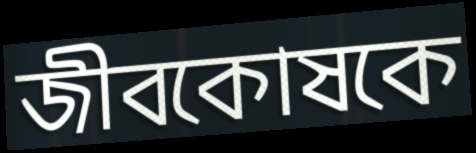
জীবকোষকে